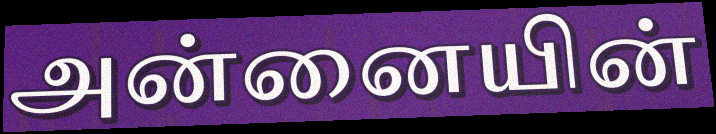
அன்னையின்